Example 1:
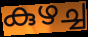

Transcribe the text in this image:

കുഴച്ച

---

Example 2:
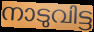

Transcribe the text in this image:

നാടുവിട്ട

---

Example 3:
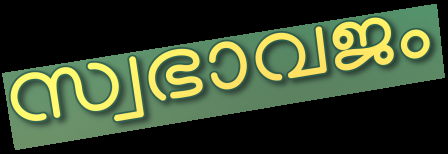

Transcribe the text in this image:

സ്വഭാവജം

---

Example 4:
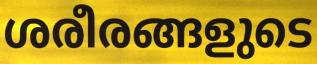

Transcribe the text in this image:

ശരീരങ്ങളുടെ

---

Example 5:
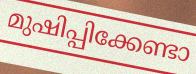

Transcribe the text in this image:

മുഷിപ്പിക്കേണ്ടാ